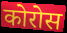
कोरोस